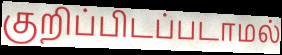
குறிப்பிடப்படாமல்